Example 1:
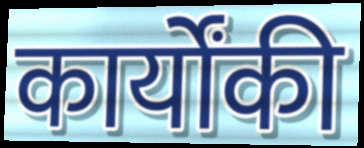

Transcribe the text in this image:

कार्योंकी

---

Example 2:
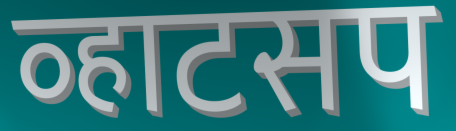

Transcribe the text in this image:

व्हाटसप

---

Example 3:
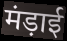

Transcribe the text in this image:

मंड़ाई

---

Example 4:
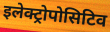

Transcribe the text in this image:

इलेक्ट्रोपोसिटिव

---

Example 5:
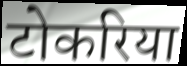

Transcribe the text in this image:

टोकरिया